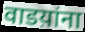
वाडय़ांना